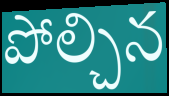
పోల్చిన